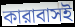
কারাবাসই